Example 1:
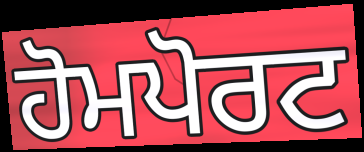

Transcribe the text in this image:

ਹੋਮਪੋਰਟ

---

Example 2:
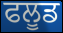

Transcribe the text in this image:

ਫਲੂਡ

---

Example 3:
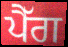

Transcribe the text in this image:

ਪੈੱਗ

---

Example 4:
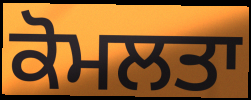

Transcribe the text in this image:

ਕੋਮਲਤਾ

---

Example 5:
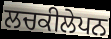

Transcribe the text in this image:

ਲਚਕੀਲੇਪਨ